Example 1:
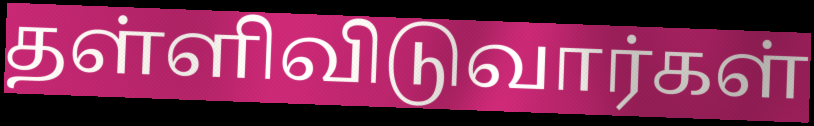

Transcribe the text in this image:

தள்ளிவிடுவார்கள்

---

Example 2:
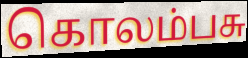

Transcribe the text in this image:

கொலம்பசு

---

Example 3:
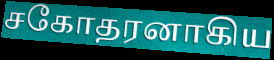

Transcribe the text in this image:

சகோதரனாகிய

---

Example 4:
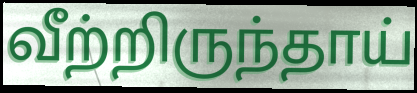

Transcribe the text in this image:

வீற்றிருந்தாய்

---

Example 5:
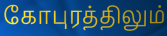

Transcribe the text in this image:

கோபுரத்திலும்